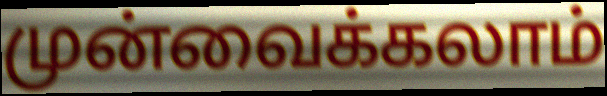
முன்வைக்கலாம்